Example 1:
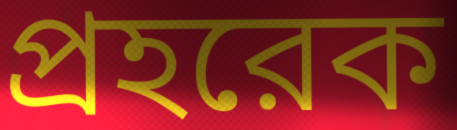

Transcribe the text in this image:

প্রহরেক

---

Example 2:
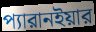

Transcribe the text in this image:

প্যারানইয়ার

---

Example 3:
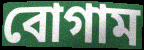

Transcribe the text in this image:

বোগাম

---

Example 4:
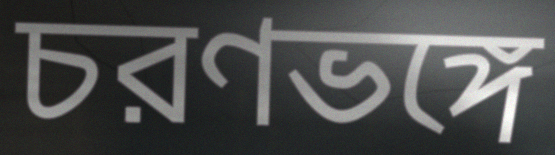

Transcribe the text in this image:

চরণভঙ্গে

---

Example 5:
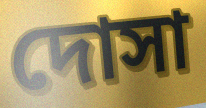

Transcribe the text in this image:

দোসা